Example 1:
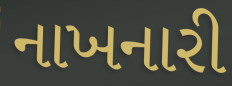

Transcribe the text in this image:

નાખનારી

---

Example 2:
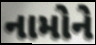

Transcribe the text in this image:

નામોને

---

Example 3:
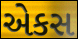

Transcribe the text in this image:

એકસ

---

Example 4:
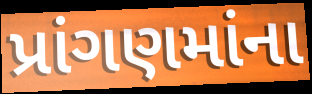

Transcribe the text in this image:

પ્રાંગણમાંના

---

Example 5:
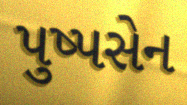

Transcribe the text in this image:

પુષ્પસેન